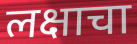
लक्षाचा